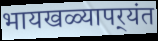
भायखळ्यापर्यंत